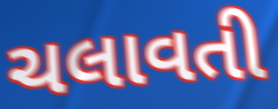
ચલાવતી